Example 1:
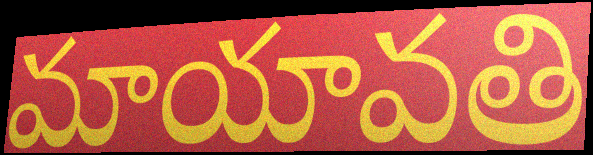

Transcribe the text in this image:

మాయావతి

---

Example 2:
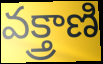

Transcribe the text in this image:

వక్త్రాణి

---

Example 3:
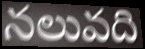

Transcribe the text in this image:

నలువది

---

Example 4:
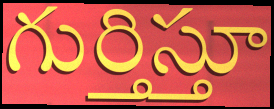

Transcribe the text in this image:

గుర్తిస్తూ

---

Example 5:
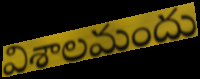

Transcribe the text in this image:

విశాలమందు